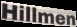
Hillmen